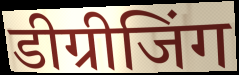
डीग्रीजिंग